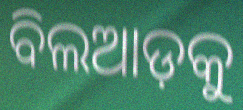
ବିଲଆଡ଼କୁ